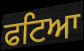
ਫਟਿਆ